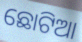
ଛୋଟିଆ